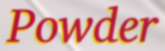
Powder